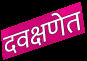
दवक्षणेत